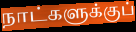
நாட்களுக்குப்